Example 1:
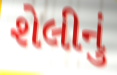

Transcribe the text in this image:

શેલીનું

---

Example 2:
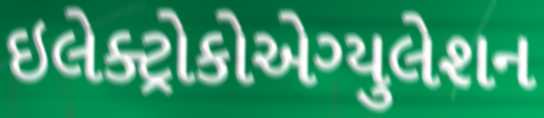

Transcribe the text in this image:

ઇલેક્ટ્રોકોએગ્યુલેશન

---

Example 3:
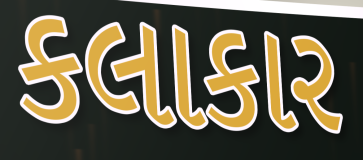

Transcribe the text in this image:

કલાકાર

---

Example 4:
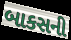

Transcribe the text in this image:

બાકસની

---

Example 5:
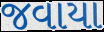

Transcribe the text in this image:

જવાયા